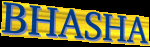
BHASHA